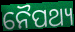
ନୈପଥ୍ୟ